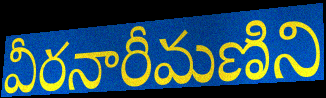
వీరనారీమణిని